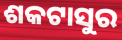
ଶକଟାସୁର